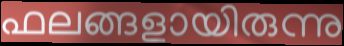
ഫലങ്ങളായിരുന്നു